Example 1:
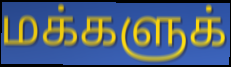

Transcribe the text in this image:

மக்களுக்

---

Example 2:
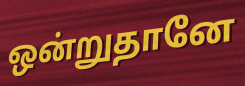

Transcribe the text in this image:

ஒன்றுதானே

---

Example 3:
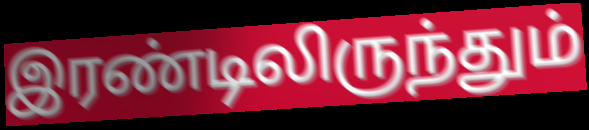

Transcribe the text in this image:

இரண்டிலிருந்தும்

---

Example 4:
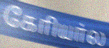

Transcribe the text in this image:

கேரியர்ல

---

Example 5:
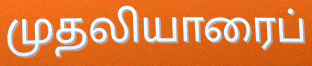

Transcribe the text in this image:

முதலியாரைப்